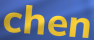
chen